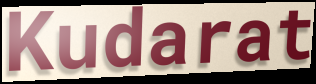
Kudarat